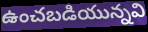
ఉంచబడియున్నవి